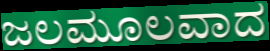
ಜಲಮೂಲವಾದ